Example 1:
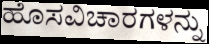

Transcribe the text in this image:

ಹೊಸವಿಚಾರಗಳನ್ನು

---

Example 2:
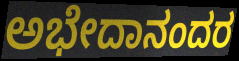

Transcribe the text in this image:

ಅಭೇದಾನಂದರ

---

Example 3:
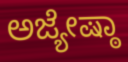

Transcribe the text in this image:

ಅಜ್ಯೇಷ್ಠಾ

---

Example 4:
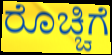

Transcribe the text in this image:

ರೊಚ್ಚಿಗೆ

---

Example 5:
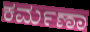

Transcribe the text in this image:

ಕರ್ಮಣಾ